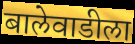
बालेवाडीला